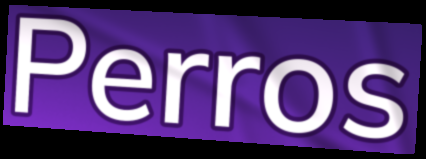
Perros